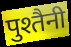
पुश्तैनी